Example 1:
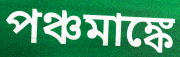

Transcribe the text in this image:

পঞ্চমাঙ্কে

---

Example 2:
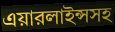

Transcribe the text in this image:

এয়ারলাইন্সসহ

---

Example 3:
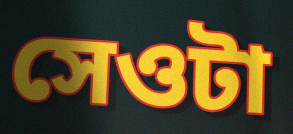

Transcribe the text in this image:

সেওটা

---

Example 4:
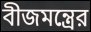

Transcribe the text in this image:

বীজমন্ত্রের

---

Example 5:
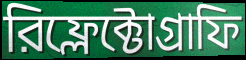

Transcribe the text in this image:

রিফ্লেক্টোগ্রাফি